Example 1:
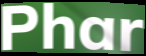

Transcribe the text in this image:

Phar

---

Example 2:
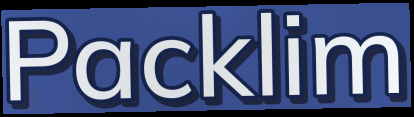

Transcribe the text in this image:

Packlim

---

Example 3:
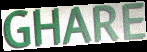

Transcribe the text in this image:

GHARE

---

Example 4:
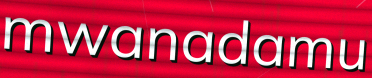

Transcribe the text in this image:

mwanadamu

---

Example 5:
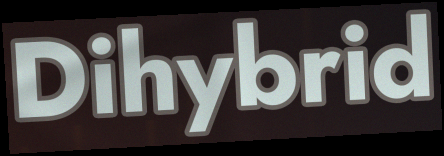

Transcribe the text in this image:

Dihybrid